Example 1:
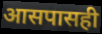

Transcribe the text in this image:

आसपासही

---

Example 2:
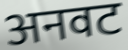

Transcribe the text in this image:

अनवट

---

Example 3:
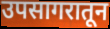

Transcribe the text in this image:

उपसागरातून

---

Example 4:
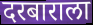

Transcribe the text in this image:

दरबाराला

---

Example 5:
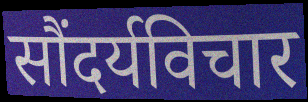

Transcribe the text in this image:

सौंदर्यविचार